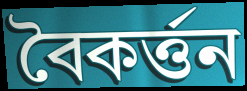
বৈকর্ত্তন